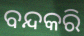
ବନ୍ଦକରି